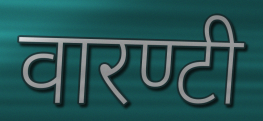
वारण्टी